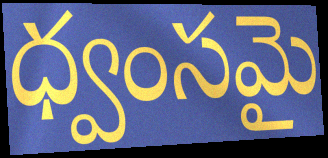
ధ్వంసమై